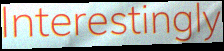
Interestingly